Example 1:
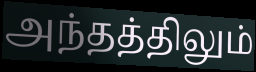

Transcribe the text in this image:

அந்தத்திலும்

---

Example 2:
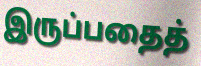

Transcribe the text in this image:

இருப்பதைத்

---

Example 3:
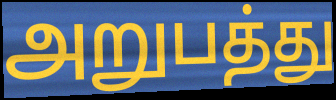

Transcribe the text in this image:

அறுபத்து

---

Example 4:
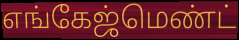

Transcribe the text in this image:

எங்கேஜ்மெண்ட்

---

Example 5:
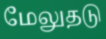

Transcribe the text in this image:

மேலுதடு